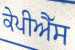
ਕੇਪੀਐੱਸ